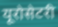
यूरोसेटरी